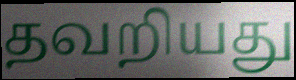
தவறியது